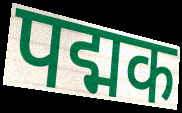
पद्मक